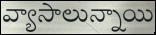
వ్యాసాలున్నాయి